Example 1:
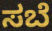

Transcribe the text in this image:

ಸಬೆ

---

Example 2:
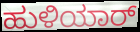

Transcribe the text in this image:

ಹುಳಿಯಾರ್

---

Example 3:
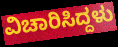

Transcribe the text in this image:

ವಿಚಾರಿಸಿದ್ದಳು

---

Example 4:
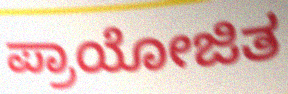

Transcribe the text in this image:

ಪ್ರಾಯೋಜಿತ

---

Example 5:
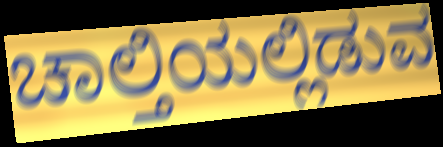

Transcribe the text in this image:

ಚಾಲ್ತಿಯಲ್ಲಿಡುವ